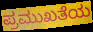
ಪ್ರಮುಖತೆಯ